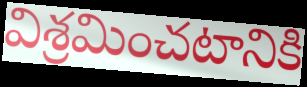
విశ్రమించటానికి